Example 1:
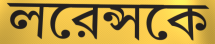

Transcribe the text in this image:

লরেন্সকে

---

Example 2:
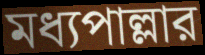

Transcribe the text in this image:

মধ্যপাল্লার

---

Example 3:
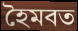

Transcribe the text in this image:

হৈমবত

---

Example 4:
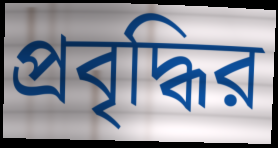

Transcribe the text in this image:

প্রবৃদ্ধির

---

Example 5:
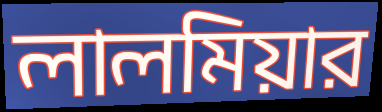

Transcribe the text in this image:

লালমিয়ার